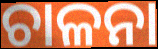
ଚାଳନା